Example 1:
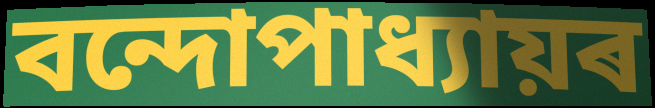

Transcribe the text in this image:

বন্দোপাধ্যায়ৰ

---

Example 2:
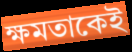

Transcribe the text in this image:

ক্ষমতাকেই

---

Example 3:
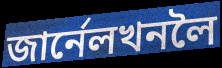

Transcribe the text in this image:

জাৰ্নেলখনলৈ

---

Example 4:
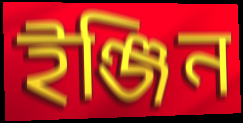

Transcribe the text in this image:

ইঞ্জিন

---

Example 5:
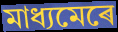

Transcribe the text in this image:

মাধ্যমেৰে